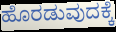
ಹೊರಡುವುದಕ್ಕೆ